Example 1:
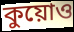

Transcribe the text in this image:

কুয়োও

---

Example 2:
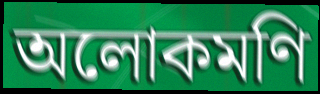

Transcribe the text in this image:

অলোকমণি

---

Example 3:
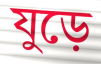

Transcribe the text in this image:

যুড়ে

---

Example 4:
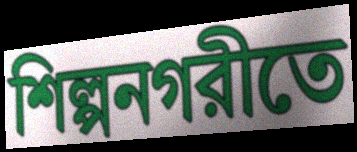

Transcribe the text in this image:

শিল্পনগরীতে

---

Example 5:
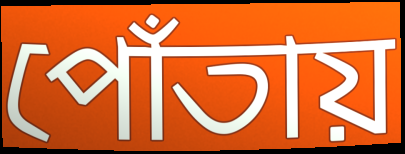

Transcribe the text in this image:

পোঁতায়